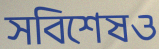
সবিশেষও